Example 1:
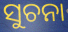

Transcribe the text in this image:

ସୁଚନା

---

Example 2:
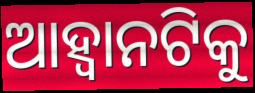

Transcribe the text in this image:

ଆହ୍ଵାନଟିକୁ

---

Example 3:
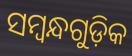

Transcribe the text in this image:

ସମ୍ବନ୍ଧଗୁଡ଼ିକ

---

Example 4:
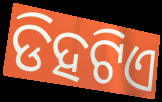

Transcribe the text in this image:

ଡିହଟିଏ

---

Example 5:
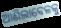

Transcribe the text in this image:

ଆଣିଲାବେଳକୁ